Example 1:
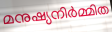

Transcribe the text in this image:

മനുഷ്യനിർമ്മിത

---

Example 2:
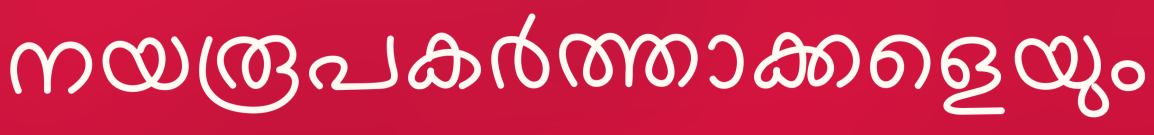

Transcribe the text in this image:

നയരൂപകർത്താക്കളെയും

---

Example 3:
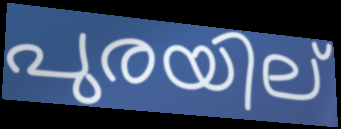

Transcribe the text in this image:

പുരയില്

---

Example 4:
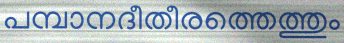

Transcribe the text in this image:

പമ്പാനദീതീരത്തെത്തും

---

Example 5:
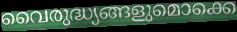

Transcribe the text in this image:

വൈരുദ്ധ്യങ്ങളുമൊക്കെ